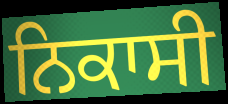
ਨਿਕਾਸੀ